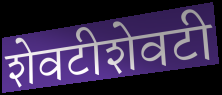
शेवटीशेवटी